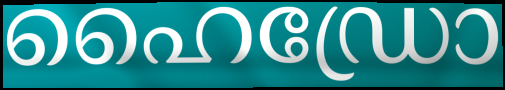
ഹൈഡ്രോ